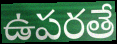
ఉపరతే